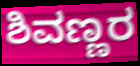
ಶಿವಣ್ಣರ